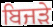
ਬਿਜੜੇ